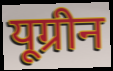
यूग्रीन